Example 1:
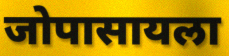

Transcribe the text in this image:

जोपासायला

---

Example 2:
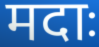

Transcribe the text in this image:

मदाः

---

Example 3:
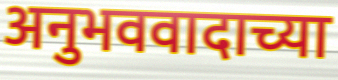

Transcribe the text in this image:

अनुभववादाच्या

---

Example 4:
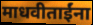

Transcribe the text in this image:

माधवीताईंना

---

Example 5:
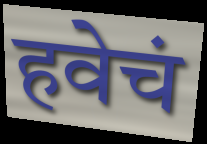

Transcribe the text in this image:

हवेचं